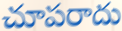
చూపరాదు